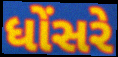
ધોંસરે